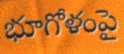
భూగోళంపై